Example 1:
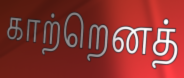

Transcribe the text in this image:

காற்றெனத்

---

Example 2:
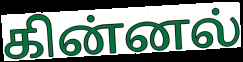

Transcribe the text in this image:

கின்னல்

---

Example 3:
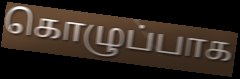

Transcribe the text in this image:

கொழுப்பாக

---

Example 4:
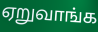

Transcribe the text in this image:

ஏறுவாங்க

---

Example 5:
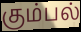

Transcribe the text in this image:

கும்பல்